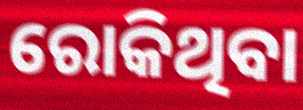
ରୋକିଥିବା